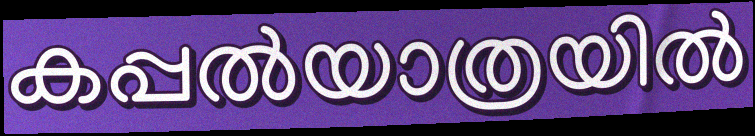
കപ്പൽയാത്രയിൽ